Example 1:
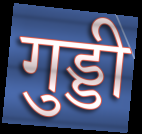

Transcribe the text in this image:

गुड्डी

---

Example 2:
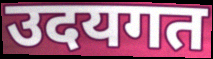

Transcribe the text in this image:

उदयगत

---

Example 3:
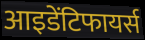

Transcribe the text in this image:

आइडेंटिफायर्स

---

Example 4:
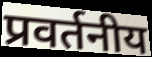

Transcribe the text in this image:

प्रवर्तनीय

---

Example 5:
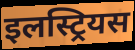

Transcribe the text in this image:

इलस्ट्रियस